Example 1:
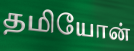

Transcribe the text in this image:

தமியோன்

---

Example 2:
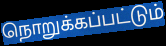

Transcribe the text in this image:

நொறுக்கப்பட்டும்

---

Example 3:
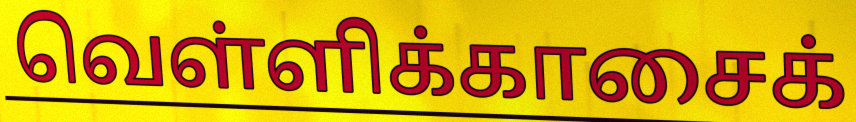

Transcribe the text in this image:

வெள்ளிக்காசைக்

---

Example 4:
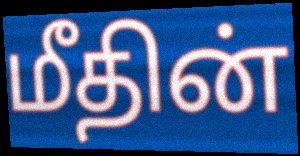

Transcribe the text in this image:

மீதின்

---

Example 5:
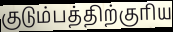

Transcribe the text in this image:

குடும்பத்திற்குரிய